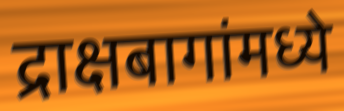
द्राक्षबागांमध्ये